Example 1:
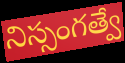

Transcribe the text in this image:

నిస్సంగత్వే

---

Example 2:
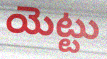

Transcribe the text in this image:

యెట్టు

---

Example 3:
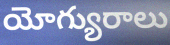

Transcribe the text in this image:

యోగ్యురాలు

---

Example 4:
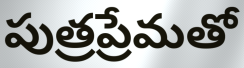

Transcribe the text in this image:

పుత్రప్రేమతో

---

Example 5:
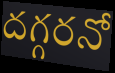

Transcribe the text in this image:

దగ్గరనో